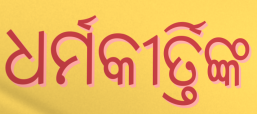
ଧର୍ମକୀର୍ତ୍ତିଙ୍କ